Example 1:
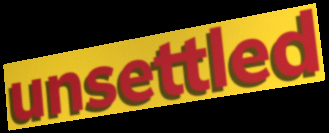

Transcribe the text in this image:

unsettled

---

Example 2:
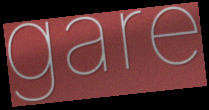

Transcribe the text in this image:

gare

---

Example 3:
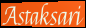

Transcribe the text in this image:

Astaksari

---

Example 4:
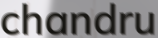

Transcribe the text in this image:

chandru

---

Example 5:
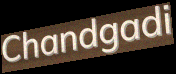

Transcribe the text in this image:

Chandgadi